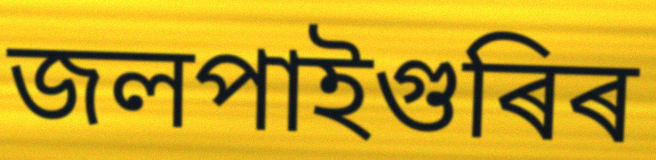
জলপাইগুৰিৰ